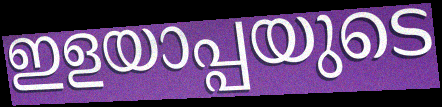
ഇളയാപ്പയുടെ